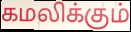
கமலிக்கும்